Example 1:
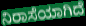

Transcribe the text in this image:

ನಿರಾಸೆಯಾಗಿದೆ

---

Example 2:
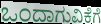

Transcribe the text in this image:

ಒಂದಾಗುವಿಕೆಗೆ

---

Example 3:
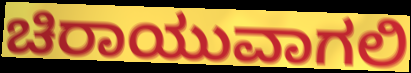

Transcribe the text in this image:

ಚಿರಾಯುವಾಗಲಿ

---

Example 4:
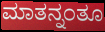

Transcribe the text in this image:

ಮಾತನ್ನಂತೂ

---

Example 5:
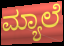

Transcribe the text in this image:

ಮ್ಯಾಲೆ